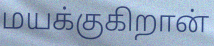
மயக்குகிறான்